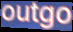
outgo